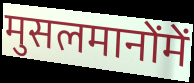
मुसलमानोंमें